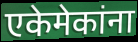
एकेमेकांना